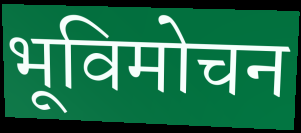
भूविमोचन